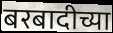
बरबादीच्या